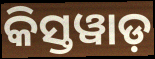
କିସ୍ତୱାଡ଼